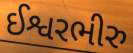
ઈશ્વરભીરુ